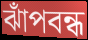
ঝাঁপবন্ধ